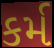
કર્મ